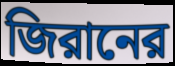
জিরানের